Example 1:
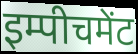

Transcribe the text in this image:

इम्पीचमेंट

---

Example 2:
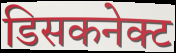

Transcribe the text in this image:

डिसकनेक्ट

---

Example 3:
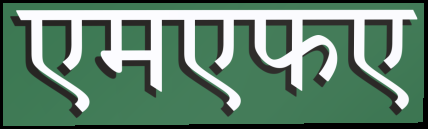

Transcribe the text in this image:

एमएफए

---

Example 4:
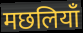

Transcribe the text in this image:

मछलियाँ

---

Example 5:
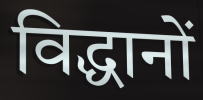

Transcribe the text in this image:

विद्धानों